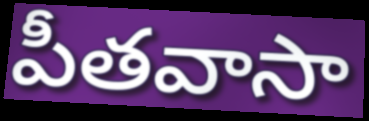
పీతవాసా